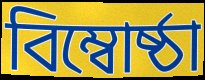
বিম্বোষ্ঠা